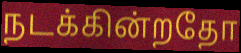
நடக்கின்றதோ